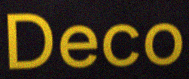
Deco